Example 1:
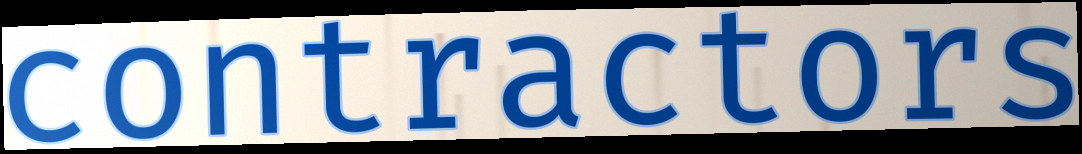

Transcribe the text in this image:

contractors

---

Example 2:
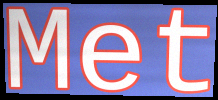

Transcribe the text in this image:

Met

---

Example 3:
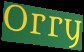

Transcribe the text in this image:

Orry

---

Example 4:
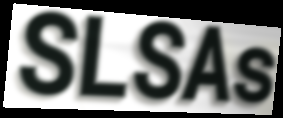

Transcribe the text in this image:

SLSAs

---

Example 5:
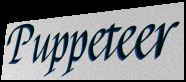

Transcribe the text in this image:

Puppeteer